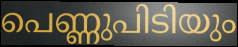
പെണ്ണുപിടിയും